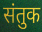
संतुक